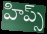
హిప్స్